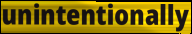
unintentionally